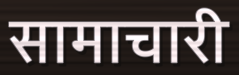
सामाचारी